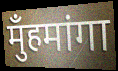
मुँहमांगा